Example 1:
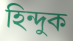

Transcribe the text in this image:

হিন্দুক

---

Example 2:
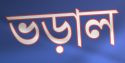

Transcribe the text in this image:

ভড়াল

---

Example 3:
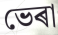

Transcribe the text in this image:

ভেৰা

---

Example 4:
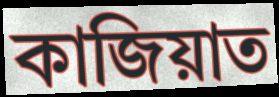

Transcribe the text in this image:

কাজিয়াত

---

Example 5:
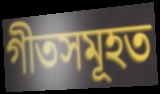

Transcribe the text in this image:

গীতসমূহত